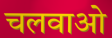
चलवाओ